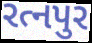
રત્નપુર